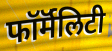
फॉर्मॅलिटी